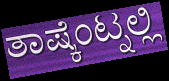
ತಾಷ್ಕೆಂಟ್ನಲ್ಲಿ